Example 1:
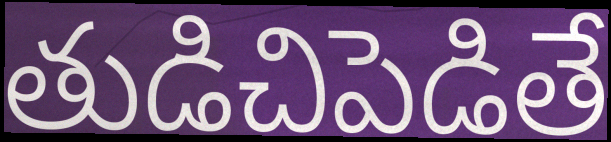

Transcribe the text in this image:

తుడిచిపెడితే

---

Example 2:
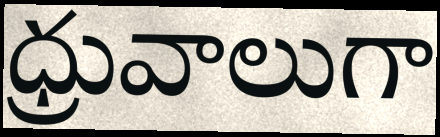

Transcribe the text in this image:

ధ్రువాలుగా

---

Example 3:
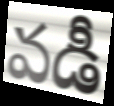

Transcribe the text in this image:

వడీ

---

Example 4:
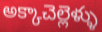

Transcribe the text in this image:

అక్కాచెల్లెళ్ళు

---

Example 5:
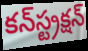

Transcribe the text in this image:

కన్‍స్ట్రక్షన్